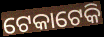
ଟେକାଟେକି